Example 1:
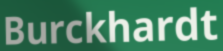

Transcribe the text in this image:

Burckhardt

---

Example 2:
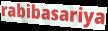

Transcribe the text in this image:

rabibasariya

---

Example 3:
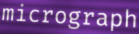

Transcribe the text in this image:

micrograph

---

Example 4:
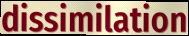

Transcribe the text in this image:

dissimilation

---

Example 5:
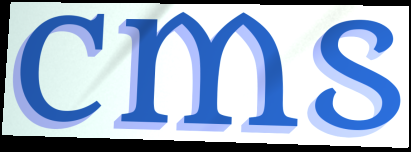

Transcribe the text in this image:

cms